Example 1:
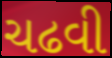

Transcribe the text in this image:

ચઢવી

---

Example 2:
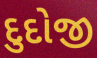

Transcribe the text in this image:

દુદોજી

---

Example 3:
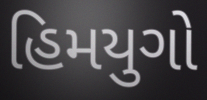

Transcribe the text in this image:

હિમયુગો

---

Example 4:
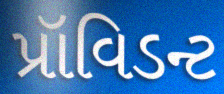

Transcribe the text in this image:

પ્રૉવિડન્ટ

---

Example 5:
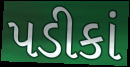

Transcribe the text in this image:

પડીકાં